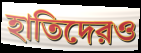
হাতিদেরও